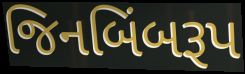
જિનબિંબરૂપ